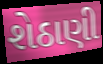
શેઠાણી